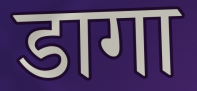
डागा